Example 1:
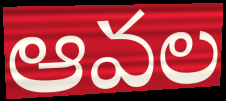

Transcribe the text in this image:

ఆవల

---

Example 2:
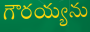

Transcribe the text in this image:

గౌరయ్యను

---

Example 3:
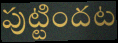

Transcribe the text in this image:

పుట్టిందట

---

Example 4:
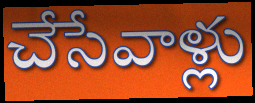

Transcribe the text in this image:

చేసేవాళ్లు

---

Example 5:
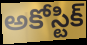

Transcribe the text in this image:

అకోస్టిక్